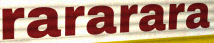
rararara